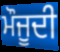
ਮੌਜੂਦੀ